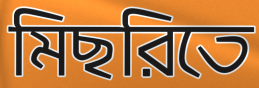
মিছরিতে